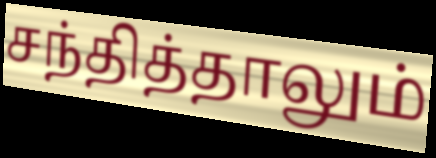
சந்தித்தாலும்